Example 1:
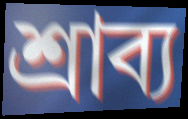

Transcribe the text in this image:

শ্রাব্য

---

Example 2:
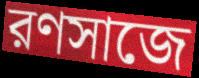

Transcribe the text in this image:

রণসাজে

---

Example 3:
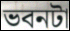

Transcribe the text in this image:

ভবনটা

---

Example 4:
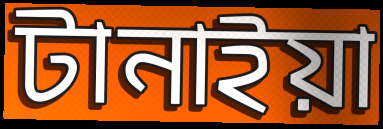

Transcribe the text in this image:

টানাইয়া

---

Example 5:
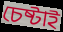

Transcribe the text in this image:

চেষ্টাই